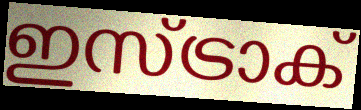
ഇസ്ട്രാക്